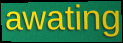
awating